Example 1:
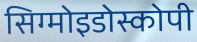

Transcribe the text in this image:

सिग्मोइडोस्कोपी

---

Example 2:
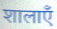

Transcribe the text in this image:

शालाएँ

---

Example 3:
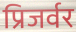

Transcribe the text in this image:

प्रिजर्वर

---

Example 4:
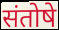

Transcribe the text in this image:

संतोषे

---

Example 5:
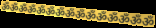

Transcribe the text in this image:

ॐॐॐॐॐॐॐॐॐॐॐॐॐॐॐ